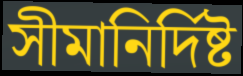
সীমানির্দিষ্ট